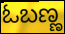
ಓಬಣ್ಣ